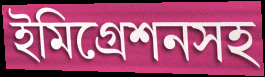
ইমিগ্রেশনসহ